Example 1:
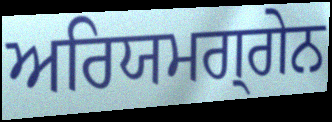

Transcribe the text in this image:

ਅਰਿਯਮਗ੍ਗੇਨ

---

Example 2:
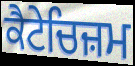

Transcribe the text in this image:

ਕੈਟੇਚਿਜ਼ਮ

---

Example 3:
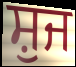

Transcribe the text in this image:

ਸ਼ੁਜ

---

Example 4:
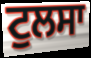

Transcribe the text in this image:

ਟੁਲਸਾ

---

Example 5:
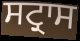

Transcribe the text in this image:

ਸਟ੍ਰਾਸ